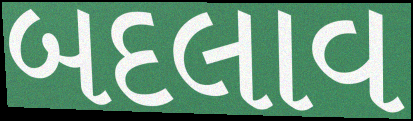
બદલાવ